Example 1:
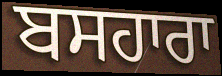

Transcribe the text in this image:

ਬਸਹਾਰਾ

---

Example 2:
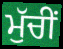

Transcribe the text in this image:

ਮੁੱਚੀਂ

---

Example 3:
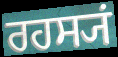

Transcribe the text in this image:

ਰਹਸ੍ਯਂ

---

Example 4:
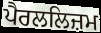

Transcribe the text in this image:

ਪੈਰਲਲਿਜ਼ਮ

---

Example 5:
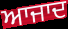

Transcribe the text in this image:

ਆਜਾਦ